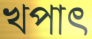
খপাৎ